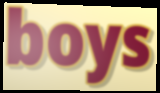
boys